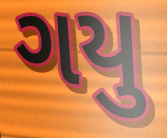
ગયુ